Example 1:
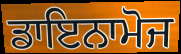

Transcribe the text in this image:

ਡਾਇਨਾਮੋਜ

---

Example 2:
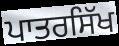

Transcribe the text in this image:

ਪਾਤਰਸਿੱਖ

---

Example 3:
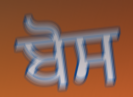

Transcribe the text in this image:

ਬੋਸ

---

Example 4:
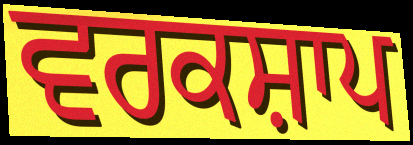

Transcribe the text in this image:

ਵਰਕਸ਼ਾਪ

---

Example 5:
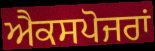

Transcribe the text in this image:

ਐਕਸਪੋਜਰਾਂ